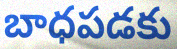
బాధపడకు